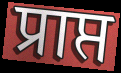
प्राप्त